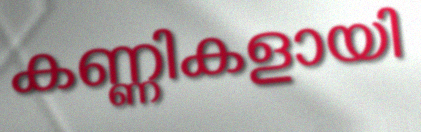
കണ്ണികളായി